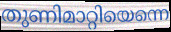
തുണിമാറ്റിയെന്നെ